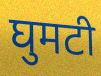
घुमटी